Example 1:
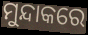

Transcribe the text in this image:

ମୁନ୍ଦାକରେ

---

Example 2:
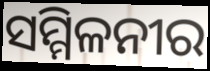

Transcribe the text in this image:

ସମ୍ମିଳନୀର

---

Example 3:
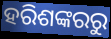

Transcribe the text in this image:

ହରିଶଙ୍କରରୁ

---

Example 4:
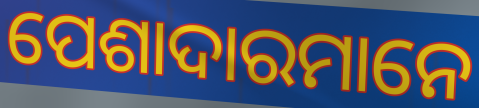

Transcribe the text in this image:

ପେଶାଦାରମାନେ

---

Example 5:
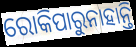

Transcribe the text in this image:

ରୋକିପାରୁନାହାନ୍ତି